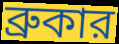
ব্রুকার